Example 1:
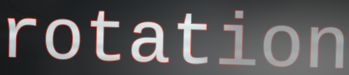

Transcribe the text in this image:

rotation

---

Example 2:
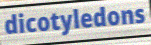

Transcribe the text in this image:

dicotyledons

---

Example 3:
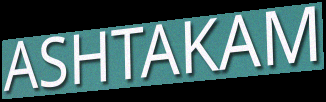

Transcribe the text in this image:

ASHTAKAM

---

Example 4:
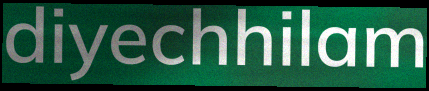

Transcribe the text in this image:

diyechhilam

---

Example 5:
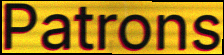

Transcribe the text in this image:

Patrons